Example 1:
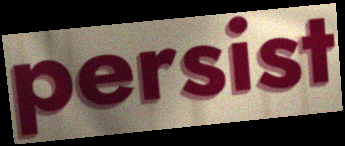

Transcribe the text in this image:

persist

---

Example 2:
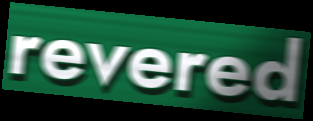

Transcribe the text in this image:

revered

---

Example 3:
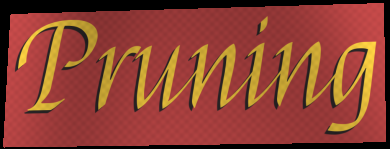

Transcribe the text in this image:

Pruning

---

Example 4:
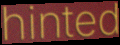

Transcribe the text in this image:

hinted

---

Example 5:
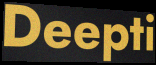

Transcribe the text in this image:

Deepti